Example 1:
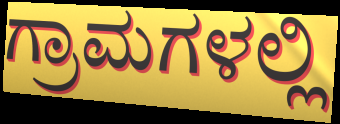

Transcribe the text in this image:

ಗ್ರಾಮಗಳಲ್ಲಿ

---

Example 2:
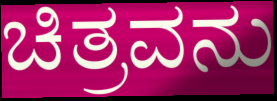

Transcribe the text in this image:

ಚಿತ್ರವನು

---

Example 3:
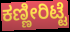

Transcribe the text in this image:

ಕಣ್ಣೀರಿಟ್ಟೆ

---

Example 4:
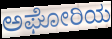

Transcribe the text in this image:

ಅಘೋರಿಯ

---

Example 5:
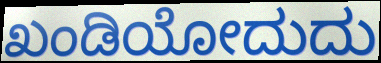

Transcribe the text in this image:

ಖಂಡಿಯೋದುದು